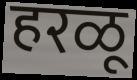
हरळू